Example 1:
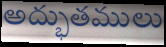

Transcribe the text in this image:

అద్భుతములు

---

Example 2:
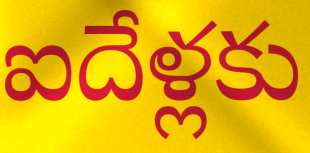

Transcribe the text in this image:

ఐదేళ్లకు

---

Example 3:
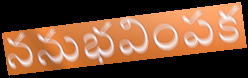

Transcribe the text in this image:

ననుభవింపక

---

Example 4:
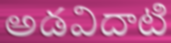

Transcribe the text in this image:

అడవిదాటి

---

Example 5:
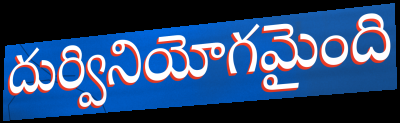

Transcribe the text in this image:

దుర్వినియోగమైంది